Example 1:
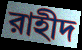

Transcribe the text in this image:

রাহীদ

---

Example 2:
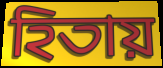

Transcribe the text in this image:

হিতায়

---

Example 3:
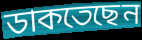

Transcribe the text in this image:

ডাকতেছেন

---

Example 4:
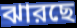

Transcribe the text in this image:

ঝারছে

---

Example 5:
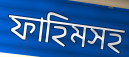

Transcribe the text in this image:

ফাহিমসহ